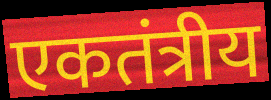
एकतंत्रीय